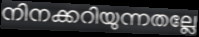
നിനക്കറിയുന്നതല്ലേ